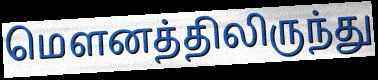
மௌனத்திலிருந்து